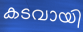
കടവായി